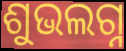
ଶୁଭଲଗ୍ନ